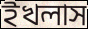
ইখলাস